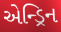
એન્ડ્રિન